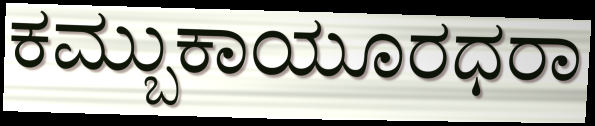
ಕಮ್ಬುಕಾಯೂರಧರಾ